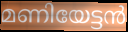
മണിയേട്ടൻ